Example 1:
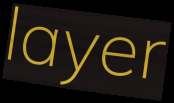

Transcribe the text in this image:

layer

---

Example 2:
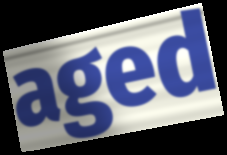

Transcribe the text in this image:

aged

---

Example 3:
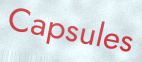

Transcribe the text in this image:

Capsules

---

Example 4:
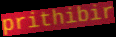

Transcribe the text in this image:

prithibir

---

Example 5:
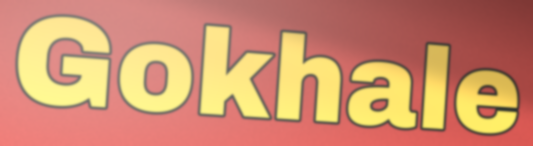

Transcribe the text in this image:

Gokhale